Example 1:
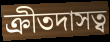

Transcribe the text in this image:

ক্রীতদাসত্ব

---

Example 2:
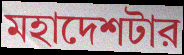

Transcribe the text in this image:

মহাদেশটার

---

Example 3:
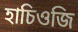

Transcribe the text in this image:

হাচিওজি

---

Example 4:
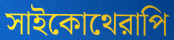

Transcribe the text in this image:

সাইকোথেরাপি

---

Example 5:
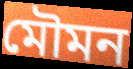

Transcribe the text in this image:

মৌমন